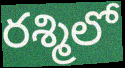
రశ్మిలో